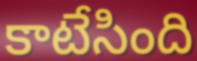
కాటేసింది